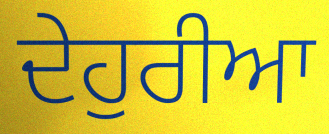
ਦੇਹੁਰੀਆ